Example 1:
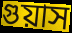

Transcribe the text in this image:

গুয়াস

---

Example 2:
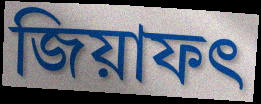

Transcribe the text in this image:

জিয়াফৎ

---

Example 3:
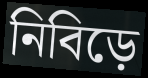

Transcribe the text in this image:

নিবিড়ে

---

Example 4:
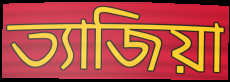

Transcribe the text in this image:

ত্যাজিয়া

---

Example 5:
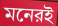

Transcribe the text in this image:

মনেরই